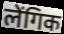
लेंगिक